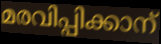
മരവിപ്പിക്കാന്